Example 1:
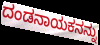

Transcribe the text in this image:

ದಂಡನಾಯಕನನ್ನು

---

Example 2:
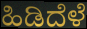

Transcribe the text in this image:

ಹಿಡಿದೆಳೆ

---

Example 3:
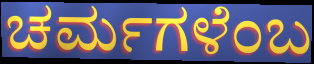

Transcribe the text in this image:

ಚರ್ಮಗಳೆಂಬ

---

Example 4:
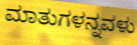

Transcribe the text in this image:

ಮಾತುಗಳನ್ನವಳು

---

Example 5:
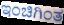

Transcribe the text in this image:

ಇಂಚಿಗಿಂತ